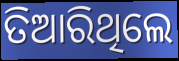
ତିଆରିଥିଲେ